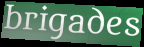
brigades